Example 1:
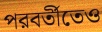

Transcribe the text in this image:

পরবর্তীতেও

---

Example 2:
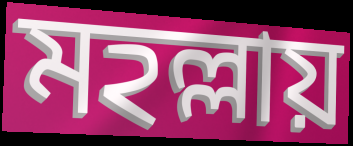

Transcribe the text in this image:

মহল্লায়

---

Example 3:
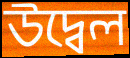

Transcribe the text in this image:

উদ্বেল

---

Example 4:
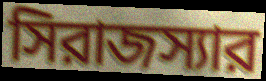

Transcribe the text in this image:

সিরাজস্যার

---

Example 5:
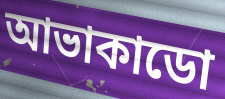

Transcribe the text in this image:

আভাকাডো